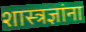
शास्त्रज्ञांना